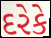
દરેકે